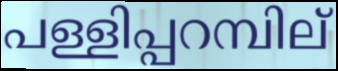
പള്ളിപ്പറമ്പില്